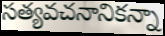
సత్యవచనానికన్నా